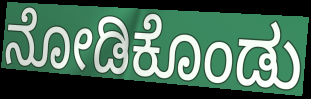
ನೋಡಿಕೊಂಡು